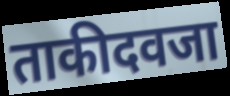
ताकीदवजा